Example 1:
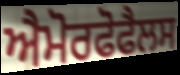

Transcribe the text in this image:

ਐਮੋਰਫੋਫੈਲਸ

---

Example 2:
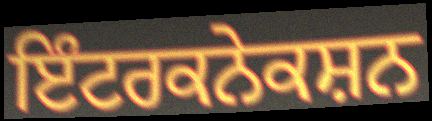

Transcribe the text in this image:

ਇੰਟਰਕਨੇਕਸ਼ਨ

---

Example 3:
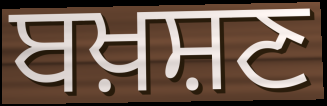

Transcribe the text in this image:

ਬਖ਼ਸ਼ਣ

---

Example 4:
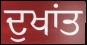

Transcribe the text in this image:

ਦੁਖਾਂਤ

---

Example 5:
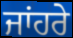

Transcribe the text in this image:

ਜਾਂਹਰੇ